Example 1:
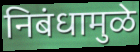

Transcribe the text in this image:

निबंधामुळे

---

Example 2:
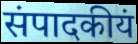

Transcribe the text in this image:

संपादकीयं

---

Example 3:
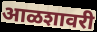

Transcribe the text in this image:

आळशावरी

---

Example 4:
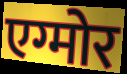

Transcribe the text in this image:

एग्मोर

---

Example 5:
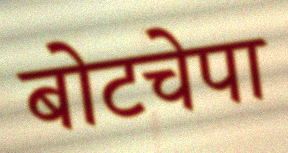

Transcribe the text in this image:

बोटचेपा